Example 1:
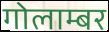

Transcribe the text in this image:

गोलाम्बर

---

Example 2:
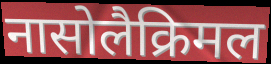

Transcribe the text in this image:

नासोलैक्रिमल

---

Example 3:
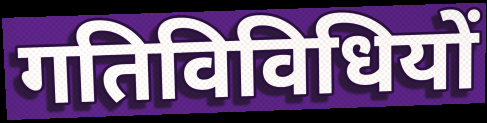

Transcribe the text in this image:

गतिविविधियों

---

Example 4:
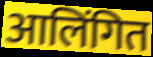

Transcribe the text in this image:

आलिंगित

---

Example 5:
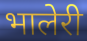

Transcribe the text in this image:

भालेरी